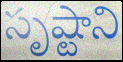
సృష్టాని